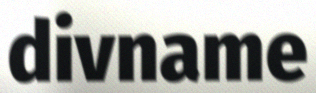
divname